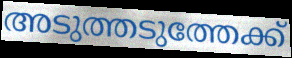
അടുത്തടുത്തേക്ക്